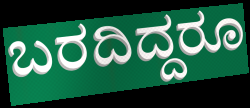
ಬರದಿದ್ದರೂ